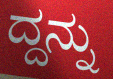
ದ್ದನ್ನು